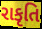
રાકૃતિ